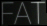
FAT